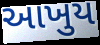
આખુય